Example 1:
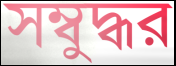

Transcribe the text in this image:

সম্বুদ্ধর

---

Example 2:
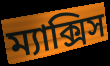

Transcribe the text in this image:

ম্যাক্সিস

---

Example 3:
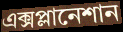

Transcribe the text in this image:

এক্সপ্লানেশান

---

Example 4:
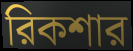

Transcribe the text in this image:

রিকশার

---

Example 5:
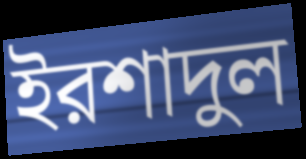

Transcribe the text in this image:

ইরশাদুল